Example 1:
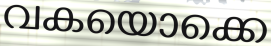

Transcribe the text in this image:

വകയൊക്കെ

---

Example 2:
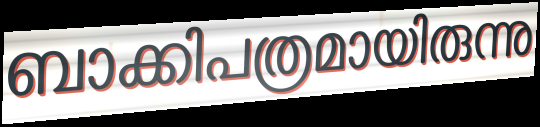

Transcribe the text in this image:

ബാക്കിപത്രമായിരുന്നു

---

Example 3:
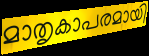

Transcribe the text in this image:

മാതൃകാപരമായി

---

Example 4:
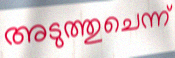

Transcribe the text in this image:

അടുത്തുചെന്ന്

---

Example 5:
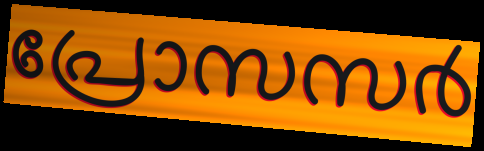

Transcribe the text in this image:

പ്രോസസർ